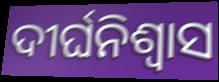
ଦୀର୍ଘନିଶ୍ବାସ